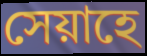
সেয়াহে